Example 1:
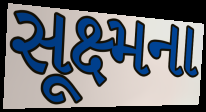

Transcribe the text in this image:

સૂક્ષ્મના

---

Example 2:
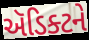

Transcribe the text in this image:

ઍડિક્ટને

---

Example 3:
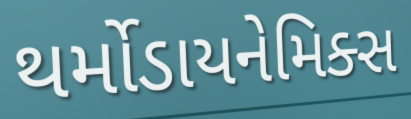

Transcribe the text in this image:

થર્મોડાયનેમિક્સ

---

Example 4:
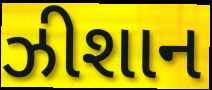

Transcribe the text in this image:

ઝીશાન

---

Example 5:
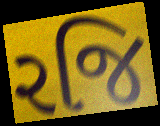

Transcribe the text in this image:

રજિ